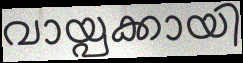
വായ്പക്കായി